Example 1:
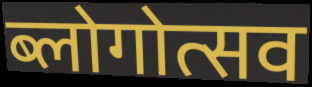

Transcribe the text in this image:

ब्लोगोत्सव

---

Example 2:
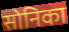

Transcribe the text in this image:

सोनिका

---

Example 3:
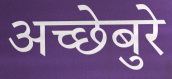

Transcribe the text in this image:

अच्छेबुरे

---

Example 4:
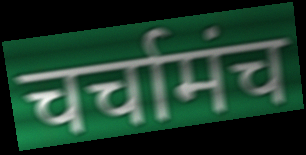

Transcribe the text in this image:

चर्चामंच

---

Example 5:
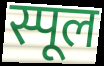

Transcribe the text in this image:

स्पूल